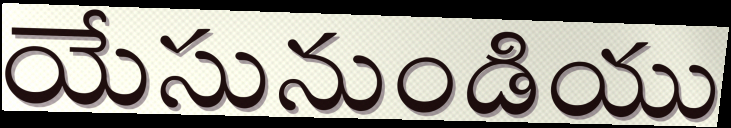
యేసునుండియు